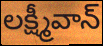
లక్ష్మీవాన్